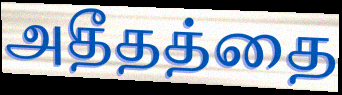
அதீதத்தை